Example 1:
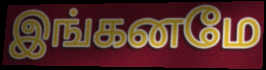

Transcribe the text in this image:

இங்கனமே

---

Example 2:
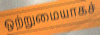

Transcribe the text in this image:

ஒற்றுமையாகச்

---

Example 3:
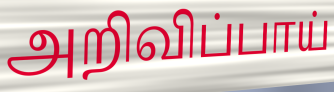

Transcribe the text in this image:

அறிவிப்பாய்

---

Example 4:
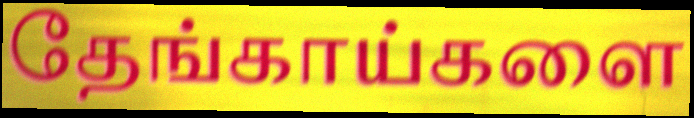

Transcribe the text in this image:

தேங்காய்களை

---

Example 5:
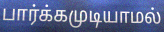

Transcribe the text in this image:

பார்க்கமுடியாமல்